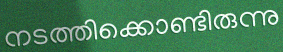
നടത്തിക്കൊണ്ടിരുന്നു